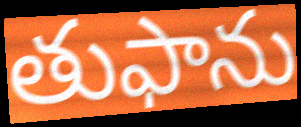
తుఫాను